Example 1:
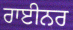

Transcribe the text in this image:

ਰਾਈਨਰ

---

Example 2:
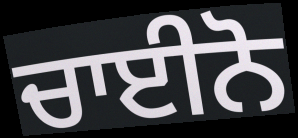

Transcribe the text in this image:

ਚਾਈਨੋ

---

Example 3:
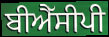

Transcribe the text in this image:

ਬੀਐੱਸੀਪੀ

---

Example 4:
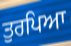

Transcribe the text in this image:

ਤੁਰਪਿਆ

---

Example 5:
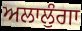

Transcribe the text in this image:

ਅਲਾਲੁੰਗਾ